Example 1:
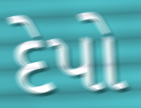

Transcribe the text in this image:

દેપો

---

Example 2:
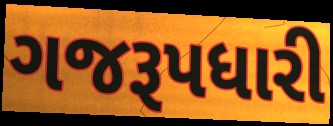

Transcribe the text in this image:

ગજરૂપધારી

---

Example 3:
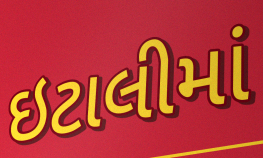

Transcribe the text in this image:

ઇટાલીમાં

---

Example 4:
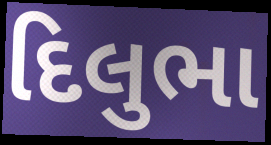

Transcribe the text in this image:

દિલુભા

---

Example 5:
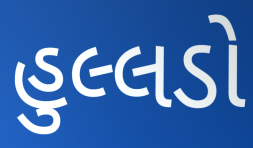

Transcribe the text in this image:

હુલ્લડો